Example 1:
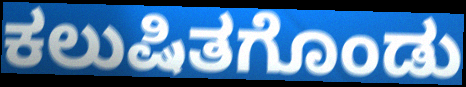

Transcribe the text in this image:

ಕಲುಷಿತಗೊಂಡು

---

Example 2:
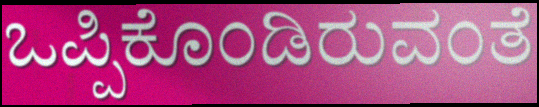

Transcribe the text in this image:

ಒಪ್ಪಿಕೊಂಡಿರುವಂತೆ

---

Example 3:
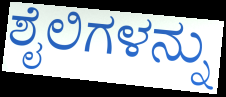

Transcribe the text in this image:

ಶೈಲಿಗಳನ್ನು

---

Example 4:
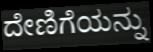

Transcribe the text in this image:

ದೇಣಿಗೆಯನ್ನು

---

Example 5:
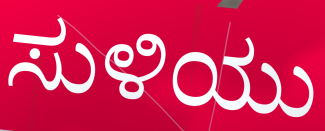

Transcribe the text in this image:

ಸುಳಿಯು